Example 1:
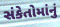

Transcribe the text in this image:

સંકેતોમાંનું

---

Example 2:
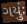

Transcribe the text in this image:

ગયુંઃ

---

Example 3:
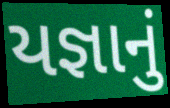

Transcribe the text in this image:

યજ્ઞાનું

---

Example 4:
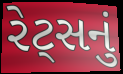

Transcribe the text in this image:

રેટ્સનું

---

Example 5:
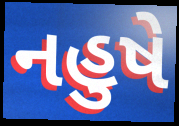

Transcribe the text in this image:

નહુષે